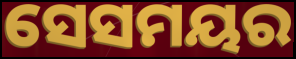
ସେସମୟର